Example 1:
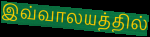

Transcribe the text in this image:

இவ்வாலயத்தில்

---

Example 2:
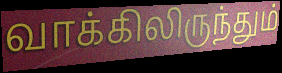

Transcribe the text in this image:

வாக்கிலிருந்தும்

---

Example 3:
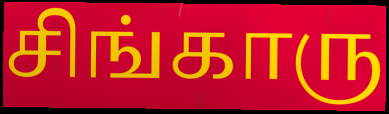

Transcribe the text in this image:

சிங்காரு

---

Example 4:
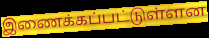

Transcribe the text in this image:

இணைக்கப்பட்டுள்ளன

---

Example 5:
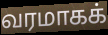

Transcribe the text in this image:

வரமாகக்